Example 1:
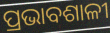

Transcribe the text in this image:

ପ୍ରଭାବଶାଳୀ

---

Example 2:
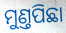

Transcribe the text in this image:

ମୁଣ୍ତପିଛା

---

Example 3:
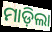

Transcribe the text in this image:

ମାଡ଼ିଲା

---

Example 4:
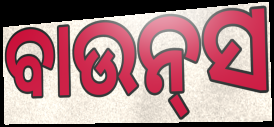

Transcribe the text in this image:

ବାଉନ୍‌ସ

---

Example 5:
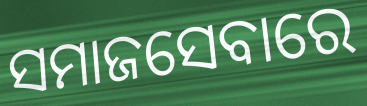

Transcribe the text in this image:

ସମାଜସେବାରେ